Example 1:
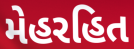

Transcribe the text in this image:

મેહરહિત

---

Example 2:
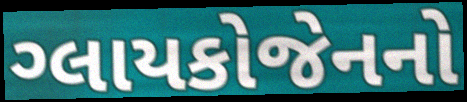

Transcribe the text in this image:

ગ્લાયકોજેનનો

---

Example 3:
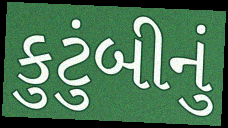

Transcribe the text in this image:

કુટુંબીનું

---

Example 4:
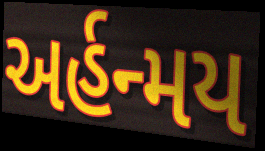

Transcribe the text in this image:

અર્હન્મય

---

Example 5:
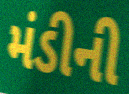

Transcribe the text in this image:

મંડીની